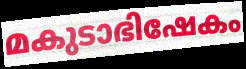
മകുടാഭിഷേകം